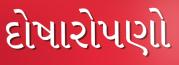
દોષારોપણો